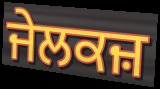
ਜੇਲਕਜ਼